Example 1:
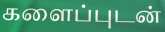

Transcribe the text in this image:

களைப்புடன்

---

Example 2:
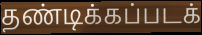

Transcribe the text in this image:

தண்டிக்கப்படக்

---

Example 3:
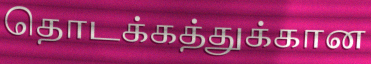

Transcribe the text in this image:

தொடக்கத்துக்கான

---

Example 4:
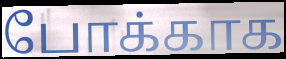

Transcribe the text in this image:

போக்காக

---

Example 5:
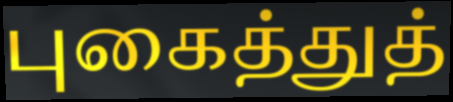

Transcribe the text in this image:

புகைத்துத்